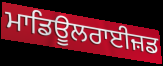
ਮਾਡਿਊਲਰਾਈਜ਼ਡ